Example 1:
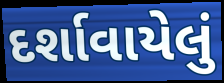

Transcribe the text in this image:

દર્શાવાયેલું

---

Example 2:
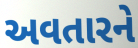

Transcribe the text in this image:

અવતારને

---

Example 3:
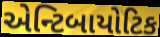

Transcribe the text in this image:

એન્ટિબાયોટિક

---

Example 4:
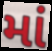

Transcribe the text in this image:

માં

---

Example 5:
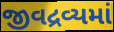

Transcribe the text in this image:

જીવદ્રવ્યમાં